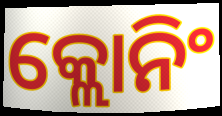
କ୍ଲୋନିଂ